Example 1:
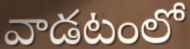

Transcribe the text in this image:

వాడటంలో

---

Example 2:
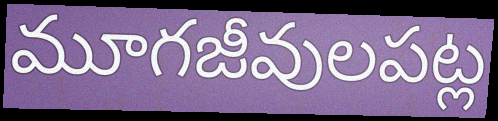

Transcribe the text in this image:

మూగజీవులపట్ల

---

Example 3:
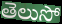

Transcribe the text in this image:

తెలుసో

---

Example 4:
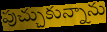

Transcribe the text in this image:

పుచ్చుకున్నాను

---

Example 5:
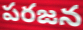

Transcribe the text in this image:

పరజన